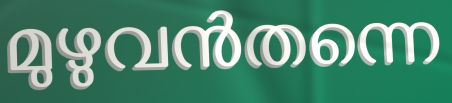
മുഴുവൻതന്നെ